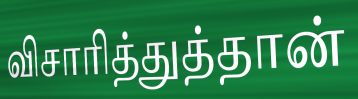
விசாரித்துத்தான்